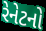
રેનેટનો